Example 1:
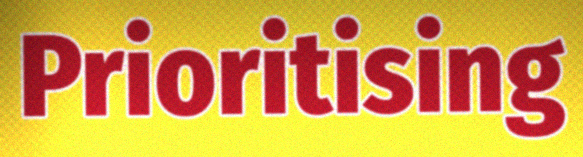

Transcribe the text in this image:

Prioritising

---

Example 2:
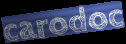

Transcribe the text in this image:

carodoc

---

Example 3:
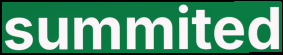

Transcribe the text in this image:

summited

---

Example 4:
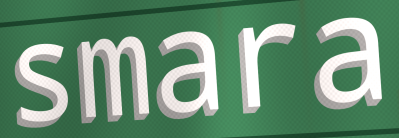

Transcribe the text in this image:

smara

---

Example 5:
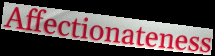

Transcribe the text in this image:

Affectionateness